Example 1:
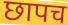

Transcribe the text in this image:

छापच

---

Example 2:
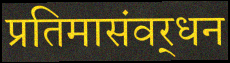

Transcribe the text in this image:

प्रतिमासंवर्धन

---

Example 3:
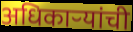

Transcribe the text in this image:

अधिकाऱ्यांची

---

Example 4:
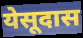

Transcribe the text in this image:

येसूदास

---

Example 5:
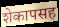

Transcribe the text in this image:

शेकापसह